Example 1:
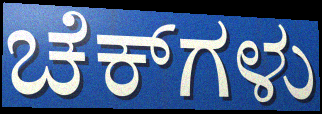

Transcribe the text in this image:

ಚೆಕ್‌ಗಳು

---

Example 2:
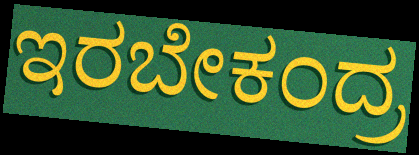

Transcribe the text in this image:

ಇರಬೇಕಂದ್ರ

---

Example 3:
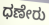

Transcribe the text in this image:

ಧಣೇರು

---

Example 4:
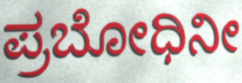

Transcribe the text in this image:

ಪ್ರಬೋಧಿನೀ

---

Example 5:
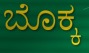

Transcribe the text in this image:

ಬೊಕ್ಕ